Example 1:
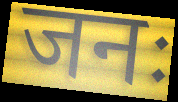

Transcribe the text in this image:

जनः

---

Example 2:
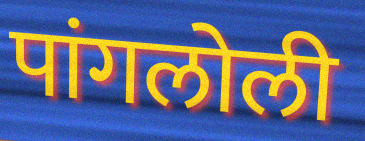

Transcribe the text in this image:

पांगलोली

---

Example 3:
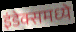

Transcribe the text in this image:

इंडेक्समध्ये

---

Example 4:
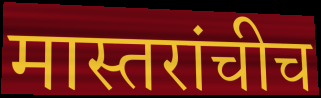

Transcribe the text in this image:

मास्तरांचीच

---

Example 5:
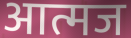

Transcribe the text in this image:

आत्मज